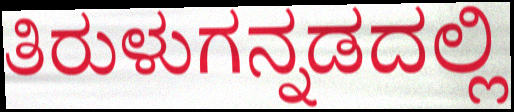
ತಿರುಳುಗನ್ನಡದಲ್ಲಿ